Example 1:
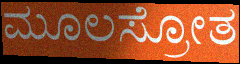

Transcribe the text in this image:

ಮೂಲಸ್ರೋತ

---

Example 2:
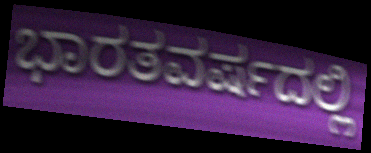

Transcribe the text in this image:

ಭಾರತವರ್ಷದಲ್ಲಿ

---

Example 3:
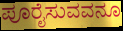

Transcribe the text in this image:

ಪೂರೈಸುವವನೂ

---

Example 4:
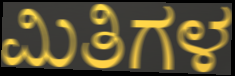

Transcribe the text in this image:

ಮಿತಿಗಳ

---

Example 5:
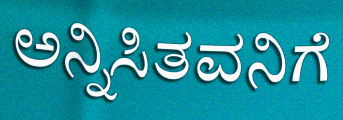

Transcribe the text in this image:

ಅನ್ನಿಸಿತವನಿಗೆ